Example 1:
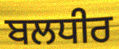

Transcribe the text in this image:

ਬਲਧੀਰ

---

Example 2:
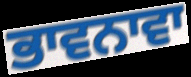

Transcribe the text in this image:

ਭਾਵਨਾਵਾ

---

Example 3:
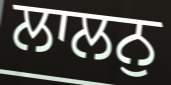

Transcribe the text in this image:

ਲਾਲਨੁ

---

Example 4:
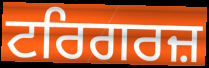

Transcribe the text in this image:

ਟਰਿਗਰਜ਼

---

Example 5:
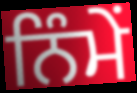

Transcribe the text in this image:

ਨਿੰਮੇਂ